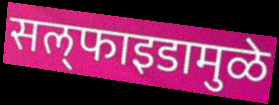
सल्फाइडामुळे